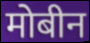
मोबीन